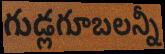
గుడ్లగూబలన్నీ